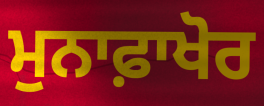
ਮੁਨਾਫ਼ਾਖੋਰ